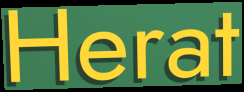
Herat